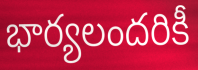
భార్యలందరికీ